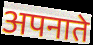
अपनाते